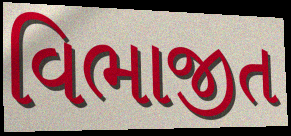
વિભાજીત